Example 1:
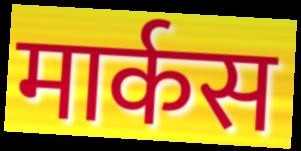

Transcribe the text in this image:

मार्कस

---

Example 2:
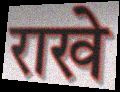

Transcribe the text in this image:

राखे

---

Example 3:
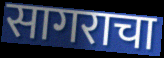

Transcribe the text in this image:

सागराचा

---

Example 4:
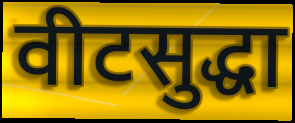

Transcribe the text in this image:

वीटसुद्धा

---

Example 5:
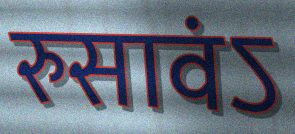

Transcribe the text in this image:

रुसावंऽ